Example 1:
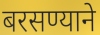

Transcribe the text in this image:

बरसण्याने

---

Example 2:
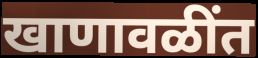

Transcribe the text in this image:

खाणावळींत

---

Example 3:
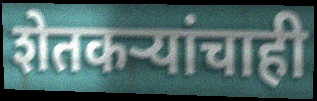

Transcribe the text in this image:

शेतकऱ्यांचाही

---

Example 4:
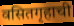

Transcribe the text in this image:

वसितगृहाची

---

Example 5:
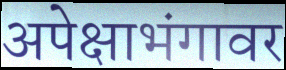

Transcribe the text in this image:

अपेक्षाभंगावर